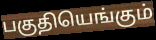
பகுதியெங்கும்